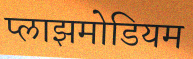
प्लाझमोडियम